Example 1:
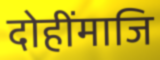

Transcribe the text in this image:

दोहींमाजि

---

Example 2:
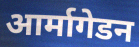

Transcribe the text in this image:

आर्मागेडन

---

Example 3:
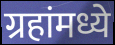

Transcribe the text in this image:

ग्रहांमध्ये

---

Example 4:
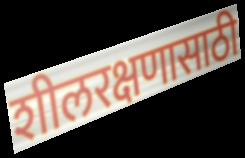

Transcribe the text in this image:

शीलरक्षणासाठी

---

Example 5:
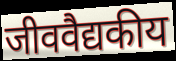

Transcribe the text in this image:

जीववैद्यकीय